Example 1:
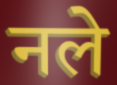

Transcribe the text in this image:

नले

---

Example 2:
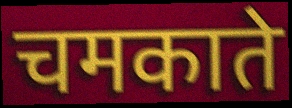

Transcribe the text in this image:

चमकाते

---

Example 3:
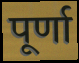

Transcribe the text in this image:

पूर्णा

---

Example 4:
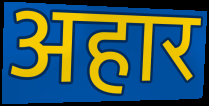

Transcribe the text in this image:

अहार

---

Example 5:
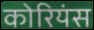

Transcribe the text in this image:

कोरियंस